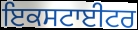
ਇਕਸਟਾਈਟਰ